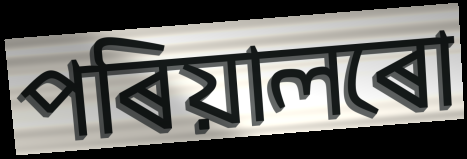
পৰিয়ালৰো